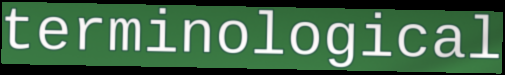
terminological